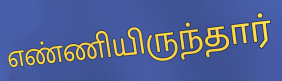
எண்ணியிருந்தார்